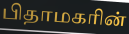
பிதாமகரின்